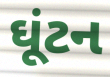
ઘૂંટન